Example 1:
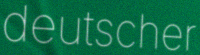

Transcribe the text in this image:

deutscher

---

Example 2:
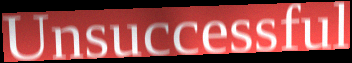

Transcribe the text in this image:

Unsuccessful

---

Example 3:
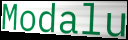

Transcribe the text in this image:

Modalu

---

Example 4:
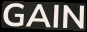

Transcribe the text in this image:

GAIN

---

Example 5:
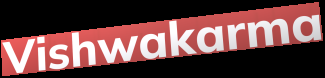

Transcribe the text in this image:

Vishwakarma